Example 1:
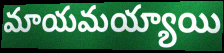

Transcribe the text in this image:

మాయమయ్యాయి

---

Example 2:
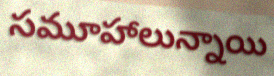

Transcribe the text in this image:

సమూహాలున్నాయి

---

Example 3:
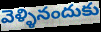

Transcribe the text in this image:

వెళ్ళినందుకు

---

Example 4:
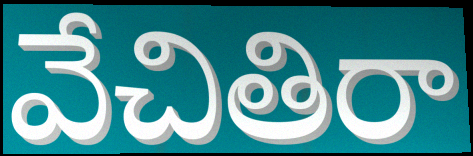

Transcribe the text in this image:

వేచితిరా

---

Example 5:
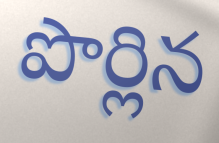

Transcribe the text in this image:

పొర్లిన